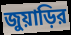
জুয়াড়ির